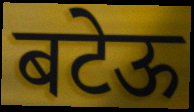
बटेऊ